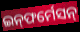
ଇନ୍‍ଫର୍ମେସନ୍